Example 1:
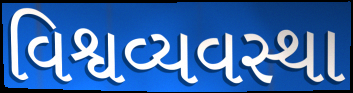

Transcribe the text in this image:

વિશ્વવ્યવસ્થા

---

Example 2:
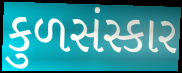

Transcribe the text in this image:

કુળસંસ્કાર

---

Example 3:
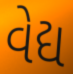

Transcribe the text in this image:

વેદ્ય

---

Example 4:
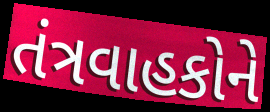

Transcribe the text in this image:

તંત્રવાહકોને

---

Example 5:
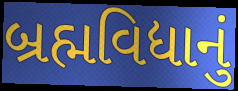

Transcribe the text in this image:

બ્રહ્મવિદ્યાનું